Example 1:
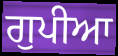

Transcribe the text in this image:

ਗੁਪੀਆ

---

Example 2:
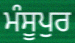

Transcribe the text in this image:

ਮੰਸੂਪੁਰ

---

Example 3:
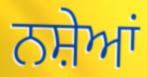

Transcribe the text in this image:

ਨਸ਼ੇਆਂ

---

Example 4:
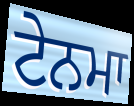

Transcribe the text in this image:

ਟੇਨਮਾ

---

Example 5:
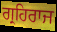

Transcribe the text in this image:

ਗ੍ਰਹਿਰਾਜ